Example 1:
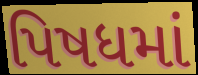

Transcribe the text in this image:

પિષધમાં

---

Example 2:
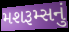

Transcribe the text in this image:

મશરૂમ્સનું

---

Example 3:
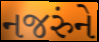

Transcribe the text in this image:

નજરુંને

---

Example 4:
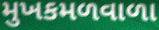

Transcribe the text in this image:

મુખકમળવાળા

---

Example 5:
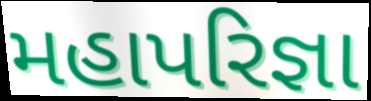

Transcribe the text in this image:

મહાપરિજ્ઞા